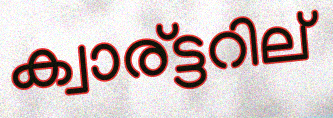
ക്വാര്ട്ടറില്